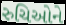
રુચિઓને